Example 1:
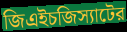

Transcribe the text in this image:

জিএইচজিস্যাটের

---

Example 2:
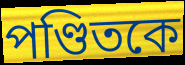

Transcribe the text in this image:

পণ্ডিতকে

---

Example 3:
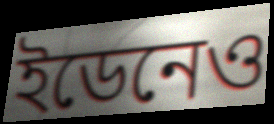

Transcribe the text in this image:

ইডেনেও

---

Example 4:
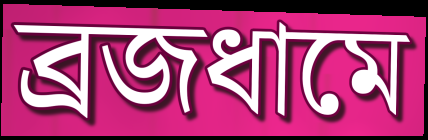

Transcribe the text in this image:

ব্রজধামে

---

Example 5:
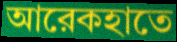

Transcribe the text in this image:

আরেকহাতে